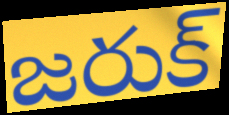
జరుక్